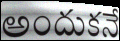
అందుకనే